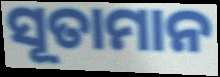
ସୂତାମାନ